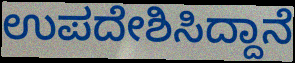
ಉಪದೇಶಿಸಿದ್ದಾನೆ